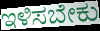
ಇಳಿಸಬೇಕು